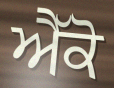
ਐੱਕੋ